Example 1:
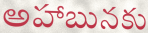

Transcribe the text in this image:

అహాబునకు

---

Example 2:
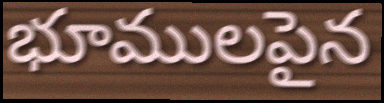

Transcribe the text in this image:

భూములపైన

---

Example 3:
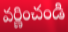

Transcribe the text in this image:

వర్ణించండి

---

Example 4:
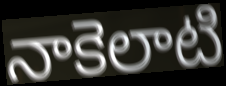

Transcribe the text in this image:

నాకెలాటి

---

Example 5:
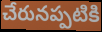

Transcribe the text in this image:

చేరునప్పటికి